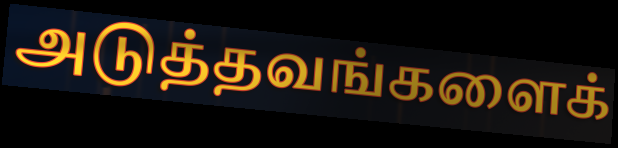
அடுத்தவங்களைக்